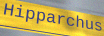
Hipparchus